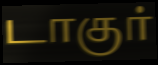
டாகுர்